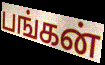
பங்கன்